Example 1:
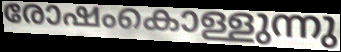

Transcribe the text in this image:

രോഷംകൊള്ളുന്നു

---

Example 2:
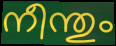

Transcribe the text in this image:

നീന്തും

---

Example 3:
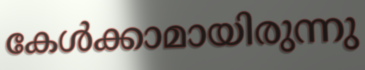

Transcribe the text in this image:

കേൾക്കാമായിരുന്നു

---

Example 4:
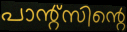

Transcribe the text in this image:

പാന്റ്സിന്റെ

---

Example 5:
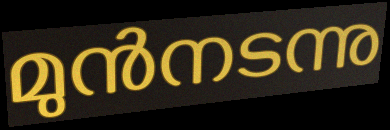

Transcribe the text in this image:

മുൻനടന്നു